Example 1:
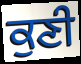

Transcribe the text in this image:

ਕੁਣੀ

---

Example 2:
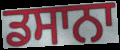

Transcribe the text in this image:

ਡਸਾਨਾ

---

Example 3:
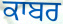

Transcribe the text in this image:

ਕਾਬਰ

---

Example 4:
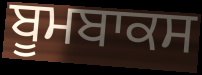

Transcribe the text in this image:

ਬੂਮਬਾਕਸ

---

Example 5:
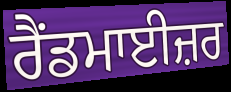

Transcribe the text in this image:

ਰੈਂਡਮਾਈਜ਼ਰ